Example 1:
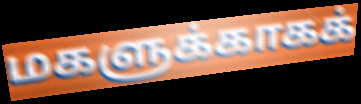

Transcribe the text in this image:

மகளுக்காகக்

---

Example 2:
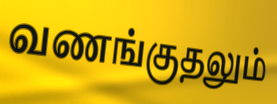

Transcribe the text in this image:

வணங்குதலும்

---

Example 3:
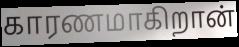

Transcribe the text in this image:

காரணமாகிறான்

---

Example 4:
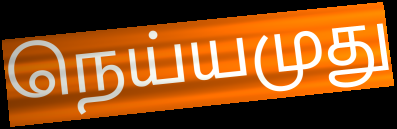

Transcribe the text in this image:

நெய்யமுது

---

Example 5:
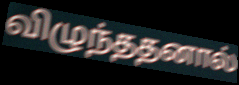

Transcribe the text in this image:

விழுந்ததனால்